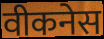
वीकनेस